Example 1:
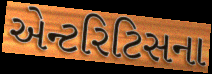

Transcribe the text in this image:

એન્ટરિટિસના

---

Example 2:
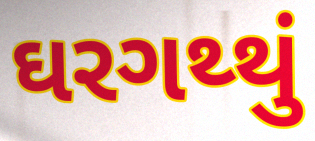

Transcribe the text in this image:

ઘરગથ્થું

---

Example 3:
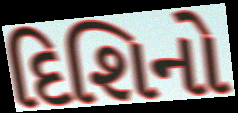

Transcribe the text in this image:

દિશિનો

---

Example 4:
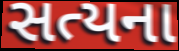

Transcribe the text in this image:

સત્યના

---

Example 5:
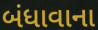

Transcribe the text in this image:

બંધાવાના